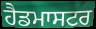
ਹੈਡਮਾਸਟਰ